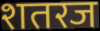
शतरज